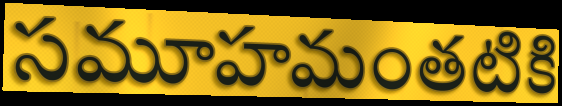
సమూహమంతటికి